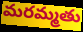
మరమ్మతు